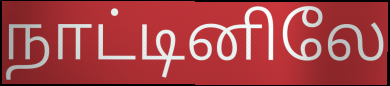
நாட்டினிலே